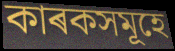
কাৰকসমূহে